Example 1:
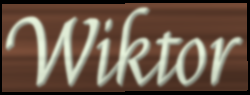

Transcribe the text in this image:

Wiktor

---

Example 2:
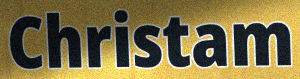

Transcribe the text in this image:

Christam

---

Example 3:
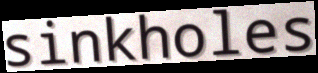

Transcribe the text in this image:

sinkholes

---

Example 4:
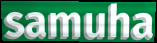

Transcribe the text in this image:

samuha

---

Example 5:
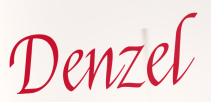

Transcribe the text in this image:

Denzel